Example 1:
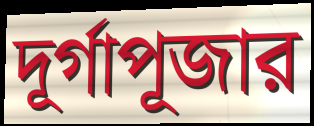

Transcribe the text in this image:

দূর্গাপূজার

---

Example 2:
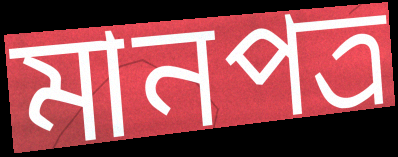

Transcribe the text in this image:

মানপত্র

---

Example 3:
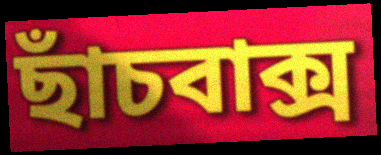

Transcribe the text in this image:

ছাঁচবাক্স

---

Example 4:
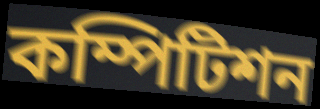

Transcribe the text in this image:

কম্পিটিশন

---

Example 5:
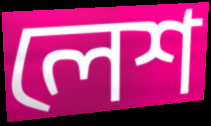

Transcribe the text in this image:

লেশ